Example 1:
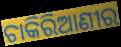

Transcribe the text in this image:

ଚାକିରିଆଣୀର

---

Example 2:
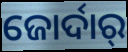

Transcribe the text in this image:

ଜୋର୍ଦାର୍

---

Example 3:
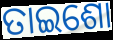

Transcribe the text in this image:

ତାଇଶୋ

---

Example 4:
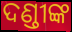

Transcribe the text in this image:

ଦଣ୍ଡୀଙ୍କ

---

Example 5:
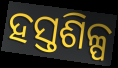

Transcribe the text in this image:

ହସ୍ତଶିଳ୍ପ